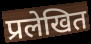
प्रलेखित